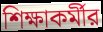
শিক্ষাকর্মীর